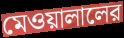
মেওয়ালালের